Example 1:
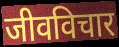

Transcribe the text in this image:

जीवविचार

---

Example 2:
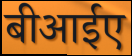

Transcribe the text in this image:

बीआईए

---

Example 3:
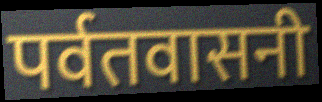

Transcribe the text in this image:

पर्वतवासनी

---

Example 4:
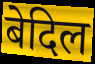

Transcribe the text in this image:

बेदिल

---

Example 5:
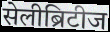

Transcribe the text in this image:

सेलीब्रिटीज